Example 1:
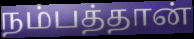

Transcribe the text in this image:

நம்பத்தான்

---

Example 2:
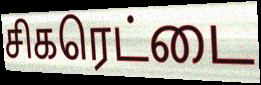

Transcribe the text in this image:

சிகரெட்டை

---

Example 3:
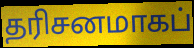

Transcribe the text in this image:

தரிசனமாகப்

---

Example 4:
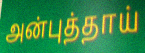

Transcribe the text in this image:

அன்புத்தாய்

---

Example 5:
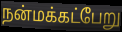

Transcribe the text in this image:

நன்மக்கட்பேறு